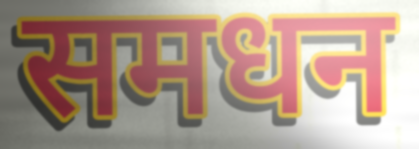
समधन